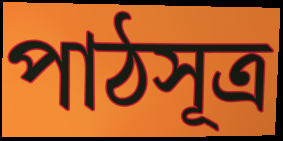
পাঠসূত্র